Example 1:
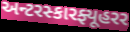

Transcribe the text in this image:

અન્ટરસ્કારફ્યૂહરર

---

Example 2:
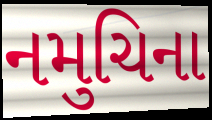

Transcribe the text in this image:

નમુચિના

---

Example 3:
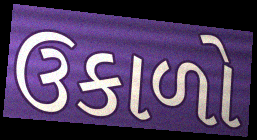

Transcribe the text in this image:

ઉકાળો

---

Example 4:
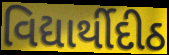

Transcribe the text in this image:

વિદ્યાર્થીદીઠ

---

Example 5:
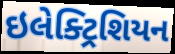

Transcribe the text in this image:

ઇલેક્ટ્રિશિયન